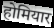
होमियार